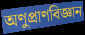
অণুপ্রাণবিজ্ঞান